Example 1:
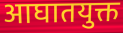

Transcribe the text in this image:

आघातयुक्त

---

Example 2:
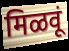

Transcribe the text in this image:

मिळवूं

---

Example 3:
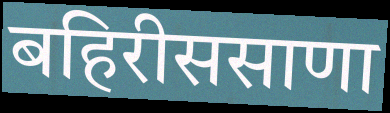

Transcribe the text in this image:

बहिरीससाणा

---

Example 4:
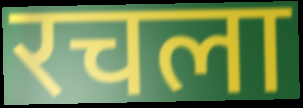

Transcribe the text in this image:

रचला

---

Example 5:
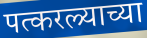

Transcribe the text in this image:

पत्करल्याच्या